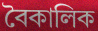
বৈকালিক